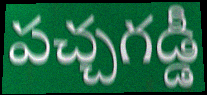
పచ్చగడ్డీ